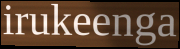
irukeenga